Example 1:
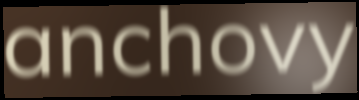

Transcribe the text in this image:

anchovy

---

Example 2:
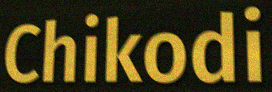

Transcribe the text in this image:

Chikodi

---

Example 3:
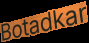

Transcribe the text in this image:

Botadkar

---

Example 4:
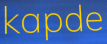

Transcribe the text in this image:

kapde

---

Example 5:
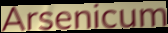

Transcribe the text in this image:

Arsenicum